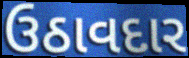
ઉઠાવદાર